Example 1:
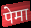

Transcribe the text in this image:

पेमा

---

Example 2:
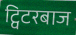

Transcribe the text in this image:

ट्विटरबाज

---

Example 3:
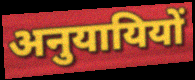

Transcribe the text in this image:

अनुयायियों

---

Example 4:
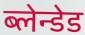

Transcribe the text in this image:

ब्लेन्डेड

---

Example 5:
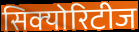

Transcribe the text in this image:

सिक्योरिटीज